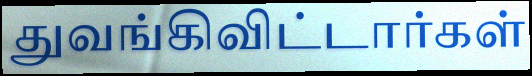
துவங்கிவிட்டார்கள்